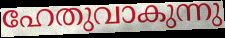
ഹേതുവാകുന്നു